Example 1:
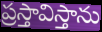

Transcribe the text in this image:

ప్రస్తావిస్తాను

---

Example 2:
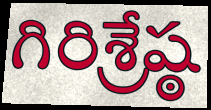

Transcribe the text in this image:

గిరిశ్రేష్ఠ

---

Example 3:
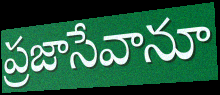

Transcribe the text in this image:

ప్రజాసేవానూ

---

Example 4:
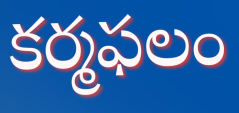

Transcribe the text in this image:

కర్మఫలం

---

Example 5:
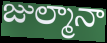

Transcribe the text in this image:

జుల్మానా